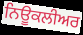
ਨਿਊਕਲੀਅਰ